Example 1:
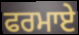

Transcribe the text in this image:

ਫਰਮਾਏ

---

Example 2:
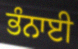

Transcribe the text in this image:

ਭੰਨਾਈ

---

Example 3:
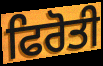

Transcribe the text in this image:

ਫਿਰੋਤੀ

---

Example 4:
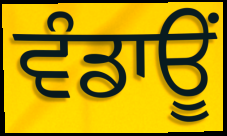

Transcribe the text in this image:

ਵੰਡਾਊਂ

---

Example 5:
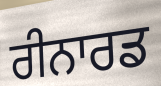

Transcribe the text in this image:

ਰੀਨਾਰਡ